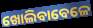
ଖୋଲିବାବେଳେ